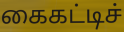
கைகட்டிச்